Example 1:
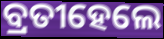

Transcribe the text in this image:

ବ୍ରତୀହେଲେ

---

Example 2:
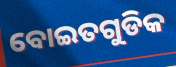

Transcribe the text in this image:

ବୋଇତଗୁଡିକ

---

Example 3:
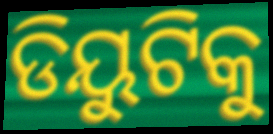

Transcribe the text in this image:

ଡିୟୁଟିକୁ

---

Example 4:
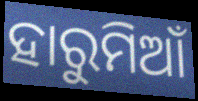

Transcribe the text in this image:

ହାରୁମିଆଁ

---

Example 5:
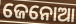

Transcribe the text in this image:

ଜେନୋଆ